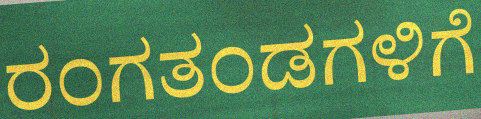
ರಂಗತಂಡಗಳಿಗೆ